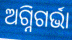
ଅଗ୍ନିଗର୍ଭା